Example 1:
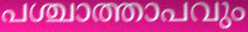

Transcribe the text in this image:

പശ്ചാത്താപവും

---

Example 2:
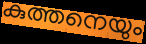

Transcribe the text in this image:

കുത്തനെയും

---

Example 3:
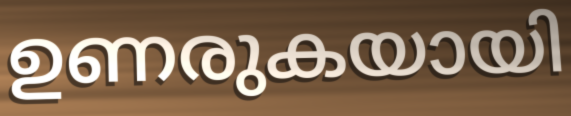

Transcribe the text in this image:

ഉണരുകയായി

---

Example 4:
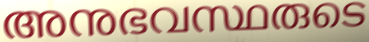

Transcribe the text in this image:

അനുഭവസ്ഥരുടെ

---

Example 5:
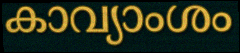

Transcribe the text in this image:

കാവ്യാംശം